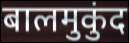
बालमुकुंद